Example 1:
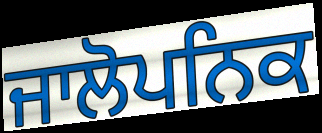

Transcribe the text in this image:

ਜਾਲੋਪਨਿਕ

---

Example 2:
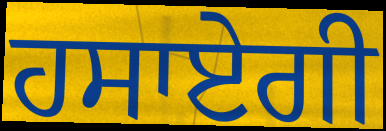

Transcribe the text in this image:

ਹਸਾਏਗੀ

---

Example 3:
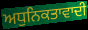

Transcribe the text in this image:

ਅਧੁਨਿਕਤਾਵਾਦੀ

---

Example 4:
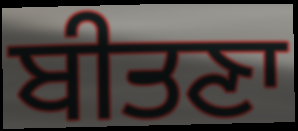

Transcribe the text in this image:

ਬੀਤਣਾ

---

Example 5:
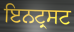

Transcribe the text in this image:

ਇਨਟ੍ਰਸਟ